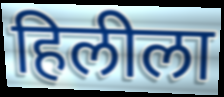
हिलीला